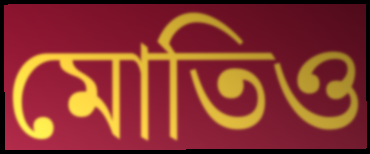
মোতিও